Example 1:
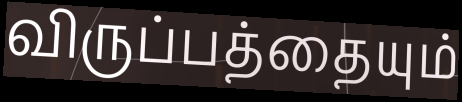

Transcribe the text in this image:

விருப்பத்தையும்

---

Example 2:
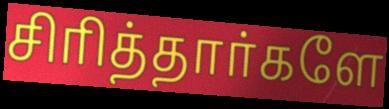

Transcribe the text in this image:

சிரித்தார்களே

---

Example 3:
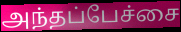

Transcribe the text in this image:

அந்தப்பேச்சை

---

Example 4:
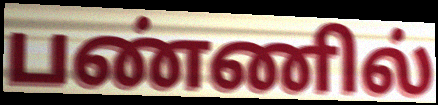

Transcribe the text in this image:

பண்ணில்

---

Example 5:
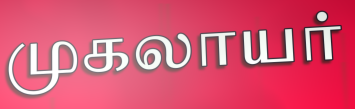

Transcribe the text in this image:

முகலாயர்